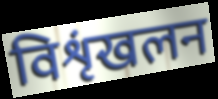
विशृंखलन